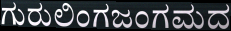
ಗುರುಲಿಂಗಜಂಗಮದ